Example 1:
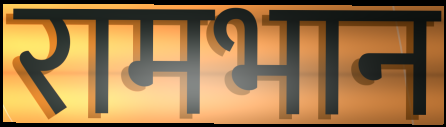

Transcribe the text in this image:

रामभान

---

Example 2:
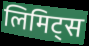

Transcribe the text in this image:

लिमिट्स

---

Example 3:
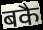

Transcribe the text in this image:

बकै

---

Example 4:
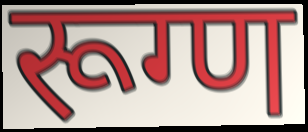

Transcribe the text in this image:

रूग्ण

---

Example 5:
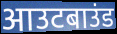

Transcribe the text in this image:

आउटबाउंड